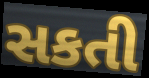
સકતી